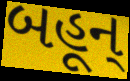
બહૂન્